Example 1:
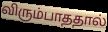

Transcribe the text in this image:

விரும்பாததால்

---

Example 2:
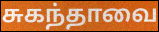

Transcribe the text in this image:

சுகந்தாவை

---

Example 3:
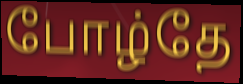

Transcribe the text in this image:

போழ்தே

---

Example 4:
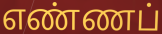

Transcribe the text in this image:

எண்ணப்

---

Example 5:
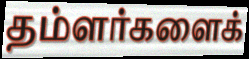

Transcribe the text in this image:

தம்ளர்களைக்